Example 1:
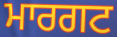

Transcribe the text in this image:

ਮਾਰਗਟ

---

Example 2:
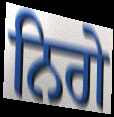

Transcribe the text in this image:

ਨਿਗੇ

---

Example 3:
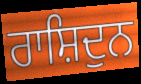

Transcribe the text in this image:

ਰਾਸ਼ਿਦੁਨ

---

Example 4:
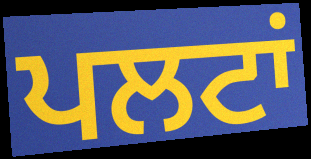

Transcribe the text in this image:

ਪਲਟਾਂ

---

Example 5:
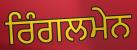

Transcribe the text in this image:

ਰਿੰਗਲਮੇਨ